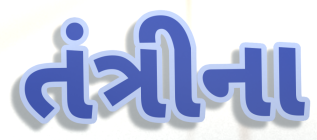
તંત્રીના